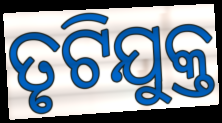
ତୃଟିଯୁକ୍ତ